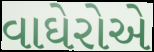
વાઘેરોએ